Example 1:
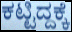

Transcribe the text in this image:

ಕಟ್ಟಿದ್ದಕ್ಕೆ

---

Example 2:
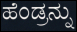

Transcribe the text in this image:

ಹೆಂಡ್ರನ್ನು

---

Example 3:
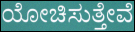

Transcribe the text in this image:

ಯೋಚಿಸುತ್ತೇವೆ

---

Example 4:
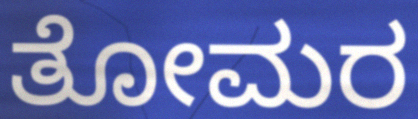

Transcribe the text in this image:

ತೋಮರ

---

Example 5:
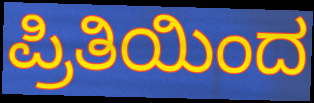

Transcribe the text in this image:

ಪ್ರಿತಿಯಿಂದ